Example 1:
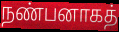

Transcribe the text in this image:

நண்பனாகத்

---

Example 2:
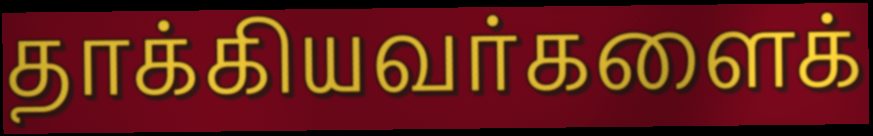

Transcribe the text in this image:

தாக்கியவர்களைக்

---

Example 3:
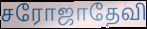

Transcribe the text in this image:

சரோஜாதேவி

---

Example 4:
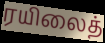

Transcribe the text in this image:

ரயிலைத்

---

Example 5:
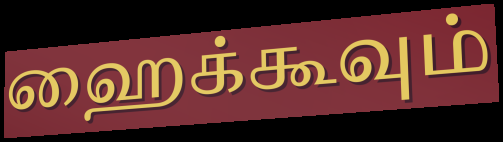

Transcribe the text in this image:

ஹைக்கூவும்